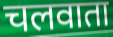
चलवाता